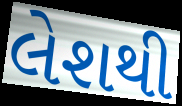
લેશથી